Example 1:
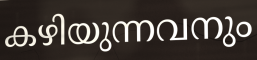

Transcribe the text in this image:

കഴിയുന്നവനും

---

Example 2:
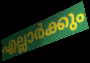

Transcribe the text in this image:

എല്ലാർക്കും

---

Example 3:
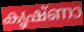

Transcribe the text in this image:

കൃഷ്ണാ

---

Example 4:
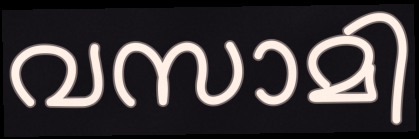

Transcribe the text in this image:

വസാമി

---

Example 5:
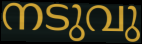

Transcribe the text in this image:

നടുവു